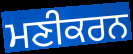
ਮਣੀਕਰਨ